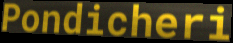
Pondicheri